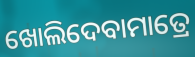
ଖୋଲିଦେବାମାତ୍ରେ